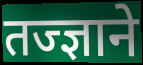
तज्ज्ञाने